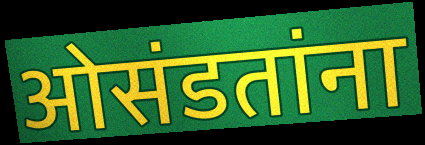
ओसंडतांना